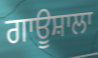
ਗਾਊਸ਼ਾਲਾ